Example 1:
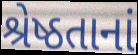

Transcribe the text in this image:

શ્રેષ્ઠતાનાં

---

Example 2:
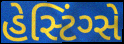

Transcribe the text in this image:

હેસ્ટિંગ્સે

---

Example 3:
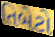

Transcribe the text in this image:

તિબેટો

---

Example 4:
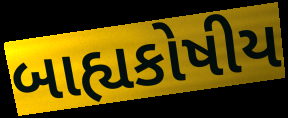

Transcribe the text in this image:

બાહ્યકોષીય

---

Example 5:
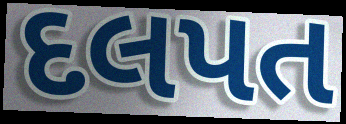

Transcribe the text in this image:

દલપત